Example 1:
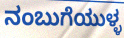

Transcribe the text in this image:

ನಂಬುಗೆಯುಳ್ಳ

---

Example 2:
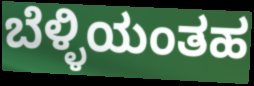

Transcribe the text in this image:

ಬೆಳ್ಳಿಯಂತಹ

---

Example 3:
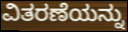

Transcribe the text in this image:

ವಿತರಣೆಯನ್ನು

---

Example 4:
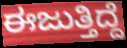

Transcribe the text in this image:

ಈಜುತ್ತಿದ್ದೆ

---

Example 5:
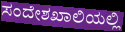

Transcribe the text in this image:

ಸಂದೇಶಖಾಲಿಯಲ್ಲಿ